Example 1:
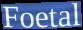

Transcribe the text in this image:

Foetal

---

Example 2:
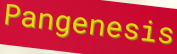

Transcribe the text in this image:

Pangenesis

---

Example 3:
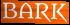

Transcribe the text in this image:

BARK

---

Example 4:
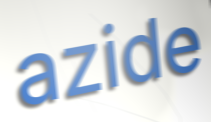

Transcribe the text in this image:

azide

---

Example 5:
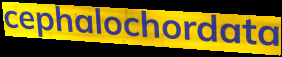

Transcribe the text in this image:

cephalochordata